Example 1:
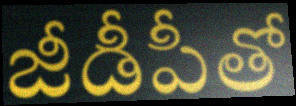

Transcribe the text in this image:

జీడీపీతో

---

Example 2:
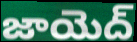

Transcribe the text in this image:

జాయెద్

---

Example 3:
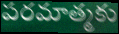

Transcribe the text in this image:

పరమాత్మకు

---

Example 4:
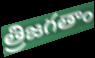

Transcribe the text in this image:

త్రిజగతాం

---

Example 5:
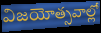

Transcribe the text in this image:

విజయోత్సవాల్లో